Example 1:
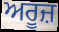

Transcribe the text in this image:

ਅਰੂਜ਼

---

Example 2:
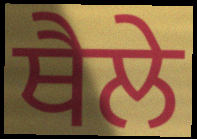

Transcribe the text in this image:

ਥੈਲੇ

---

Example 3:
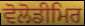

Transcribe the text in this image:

ਵੋਲੋਡੀਮਿਰ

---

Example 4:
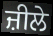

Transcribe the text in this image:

ਜ਼ੀਲੇ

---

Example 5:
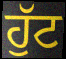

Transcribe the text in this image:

ਹੁੱਟ